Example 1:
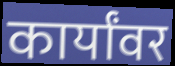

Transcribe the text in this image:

कार्यांवर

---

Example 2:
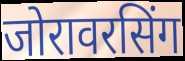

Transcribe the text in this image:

जोरावरसिंग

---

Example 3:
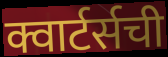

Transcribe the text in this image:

क्वार्टर्सची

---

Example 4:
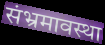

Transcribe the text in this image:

संभ्रमावस्था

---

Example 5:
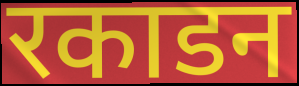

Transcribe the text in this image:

रकाडन